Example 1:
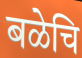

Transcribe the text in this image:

बळेचि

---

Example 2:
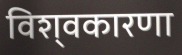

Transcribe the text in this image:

विश्वकारणा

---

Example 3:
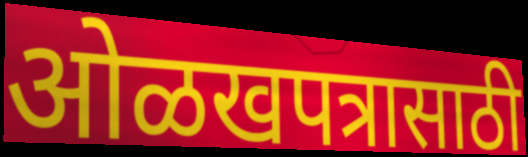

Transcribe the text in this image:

ओळखपत्रासाठी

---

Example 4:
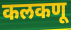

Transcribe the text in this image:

कलकणू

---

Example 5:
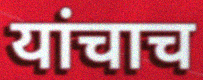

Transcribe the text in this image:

यांचाच